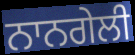
ਨਾਨਗੇਲੀ